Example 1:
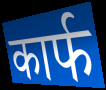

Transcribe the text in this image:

कार्फ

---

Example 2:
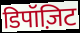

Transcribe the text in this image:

डिपॉज़िट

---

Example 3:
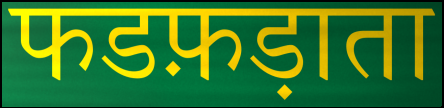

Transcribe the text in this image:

फडफ़ड़ाता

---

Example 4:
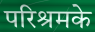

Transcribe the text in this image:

परिश्रमके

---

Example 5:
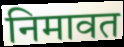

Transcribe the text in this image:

निमावत